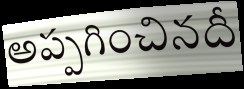
అప్పగించినదీ